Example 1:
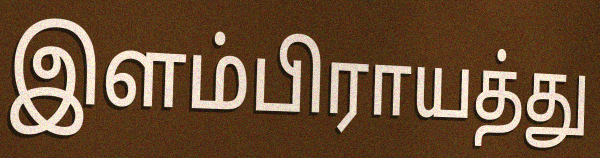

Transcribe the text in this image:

இளம்பிராயத்து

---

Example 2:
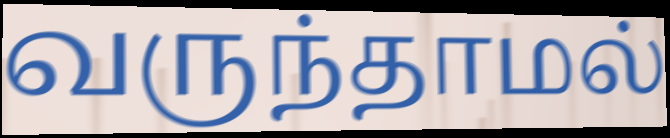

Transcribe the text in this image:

வருந்தாமல்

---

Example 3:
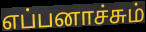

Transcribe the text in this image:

எப்பனாச்சும்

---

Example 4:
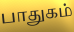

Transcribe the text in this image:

பாதுகம்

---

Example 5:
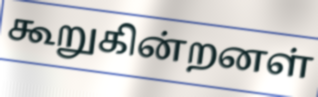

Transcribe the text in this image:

கூறுகின்றனள்